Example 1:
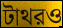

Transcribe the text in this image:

টাথরও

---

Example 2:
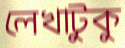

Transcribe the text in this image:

লেখাটুকু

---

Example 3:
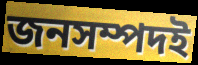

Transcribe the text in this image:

জনসম্পদই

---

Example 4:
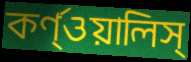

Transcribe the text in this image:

কর্ণ্ওয়ালিস্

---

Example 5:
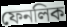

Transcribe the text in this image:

ফেনলিক